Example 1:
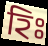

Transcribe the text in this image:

হিঃ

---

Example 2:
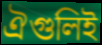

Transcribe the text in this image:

ঐগুলিই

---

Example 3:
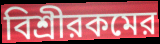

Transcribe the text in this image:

বিশ্রীরকমের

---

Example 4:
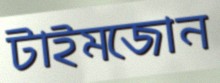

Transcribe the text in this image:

টাইমজোন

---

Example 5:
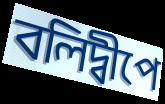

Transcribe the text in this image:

বলিদ্বীপে